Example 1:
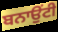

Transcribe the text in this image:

ਬਨਾਉਂਟੀ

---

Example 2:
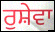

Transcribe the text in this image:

ਰੁਸ਼ੇਵਾ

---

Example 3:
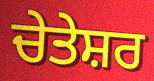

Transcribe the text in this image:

ਚੇਤੇਸ਼ਰ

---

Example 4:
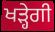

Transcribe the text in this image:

ਖੜ੍ਹੇਗੀ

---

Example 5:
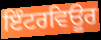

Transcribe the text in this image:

ਇੰਟਰਵਿਊਰ